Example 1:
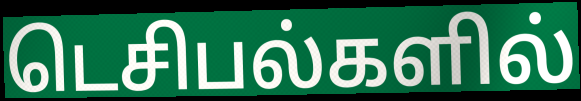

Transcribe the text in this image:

டெசிபல்களில்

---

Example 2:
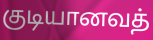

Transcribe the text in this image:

குடியானவத்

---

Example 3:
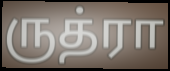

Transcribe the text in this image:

ருத்ரா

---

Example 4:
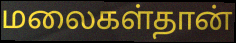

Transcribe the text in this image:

மலைகள்தான்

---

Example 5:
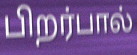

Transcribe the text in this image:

பிறர்பால்